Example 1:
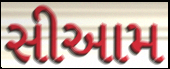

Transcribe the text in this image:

સીઆમ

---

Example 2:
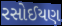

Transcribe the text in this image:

રસોઈયણ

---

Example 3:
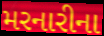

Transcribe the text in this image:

મરનારીના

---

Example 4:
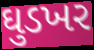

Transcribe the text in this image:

ઘુડખર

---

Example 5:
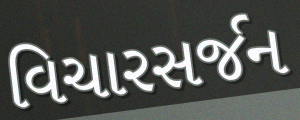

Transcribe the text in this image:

વિચારસર્જન